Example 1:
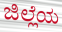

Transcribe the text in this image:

ಜಿಲ್ಲೆಯ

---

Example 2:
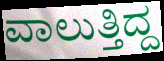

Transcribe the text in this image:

ವಾಲುತ್ತಿದ್ದ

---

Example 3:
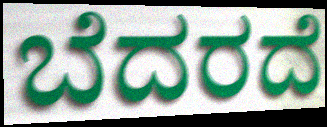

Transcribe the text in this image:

ಬೆದರದೆ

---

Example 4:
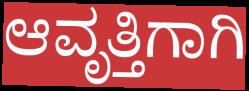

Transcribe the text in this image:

ಆವೃತ್ತಿಗಾಗಿ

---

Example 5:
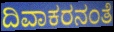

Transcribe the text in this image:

ದಿವಾಕರನಂತೆ